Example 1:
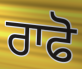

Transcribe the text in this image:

ਰਾਫੋ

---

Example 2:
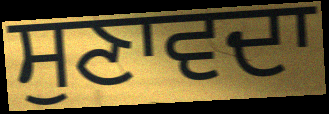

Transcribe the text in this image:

ਸੁਣਾਵਦਾ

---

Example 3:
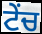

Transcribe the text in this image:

ਟੇਂਚ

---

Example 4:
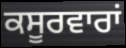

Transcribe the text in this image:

ਕਸੂਰਵਾਰਾਂ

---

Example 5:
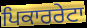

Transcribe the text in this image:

ਪਿਕਾਰਰੇਟਾ